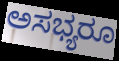
ಅಸಭ್ಯರೂ